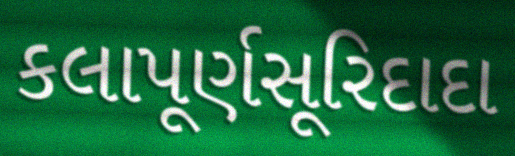
કલાપૂર્ણસૂરિદાદા